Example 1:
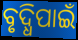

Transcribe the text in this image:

ବୃଦ୍ଧିପାଇଁ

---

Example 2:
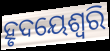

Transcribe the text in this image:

ହୃଦୟେଶ୍ଵରି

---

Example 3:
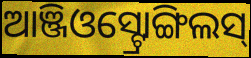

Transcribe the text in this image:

ଆଞ୍ଜିଓସ୍ଟ୍ରୋଙ୍ଗିଲସ୍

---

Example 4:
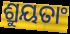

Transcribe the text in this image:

ଶ୍ରୁୟତାଂ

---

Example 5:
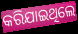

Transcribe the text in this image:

କରିଯାଇଥିଲେ